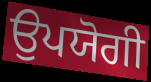
ਉਪਯੋਗੀ